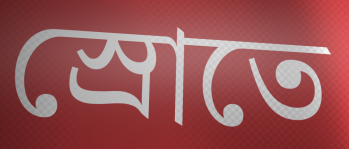
স্রোতে